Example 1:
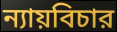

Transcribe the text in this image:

ন্যায়বিচার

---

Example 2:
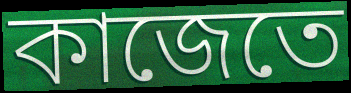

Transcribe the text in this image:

কাজেতে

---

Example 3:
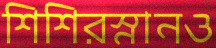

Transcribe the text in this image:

শিশিরস্নানও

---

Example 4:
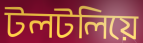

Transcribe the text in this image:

টলটলিয়ে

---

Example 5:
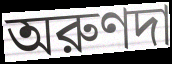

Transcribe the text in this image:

অরুণদা